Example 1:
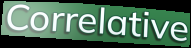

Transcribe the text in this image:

Correlative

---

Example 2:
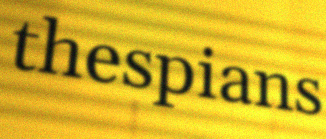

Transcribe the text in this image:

thespians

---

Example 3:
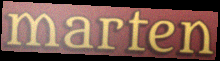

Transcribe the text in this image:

marten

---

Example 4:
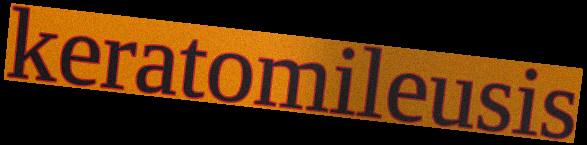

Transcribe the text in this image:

keratomileusis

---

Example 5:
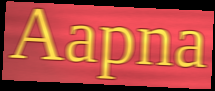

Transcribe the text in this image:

Aapna